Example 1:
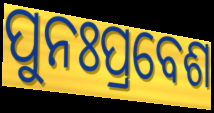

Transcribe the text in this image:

ପୁନଃପ୍ରବେଶ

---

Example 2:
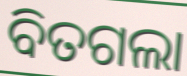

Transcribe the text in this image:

ବିତଗଲା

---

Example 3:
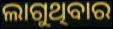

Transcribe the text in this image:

ଲାଗୁଥିବାର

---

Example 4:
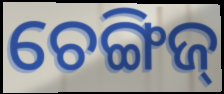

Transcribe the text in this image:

ଚେଙ୍ଗିଜ୍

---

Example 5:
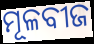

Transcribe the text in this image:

ମୂଳବୀଜ